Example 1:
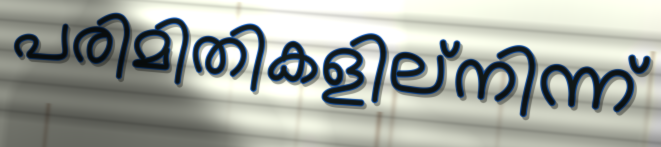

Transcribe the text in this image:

പരിമിതികളില്നിന്ന്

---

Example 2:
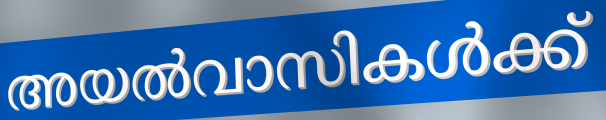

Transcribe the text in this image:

അയൽവാസികൾക്ക്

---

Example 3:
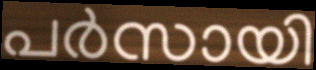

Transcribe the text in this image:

പർസായി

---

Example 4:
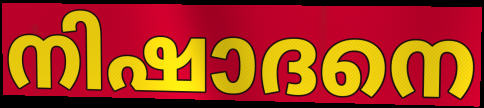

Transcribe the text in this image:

നിഷാദനെ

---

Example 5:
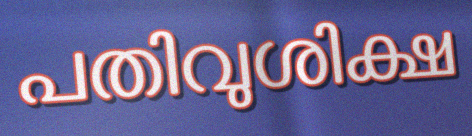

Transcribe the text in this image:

പതിവുശിക്ഷ